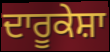
ਦਾਰੂਕੇਸ਼ਾ